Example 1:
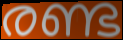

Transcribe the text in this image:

രണ്ട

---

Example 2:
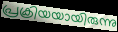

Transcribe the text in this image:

പ്രക്രിയയായിരുന്നു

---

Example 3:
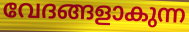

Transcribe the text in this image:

വേദങ്ങളാകുന്ന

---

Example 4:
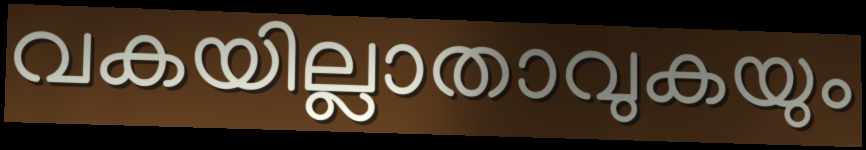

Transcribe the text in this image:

വകയില്ലാതാവുകയും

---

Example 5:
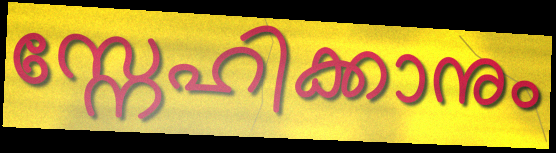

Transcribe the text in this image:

സ്നേഹിക്കാനും